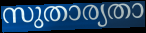
സുതാര്യതാ